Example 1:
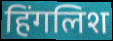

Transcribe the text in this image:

हिंगलिश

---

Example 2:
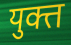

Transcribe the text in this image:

युक्त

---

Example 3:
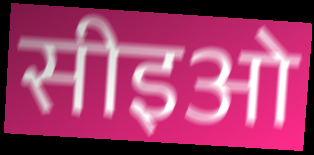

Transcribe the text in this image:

सीइओ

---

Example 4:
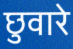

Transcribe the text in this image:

छुवारे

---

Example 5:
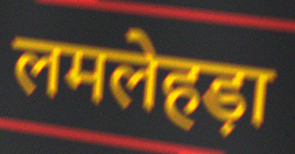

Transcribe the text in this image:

लमलेहड़ा